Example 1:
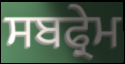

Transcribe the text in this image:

ਸਬਫ੍ਰੇਮ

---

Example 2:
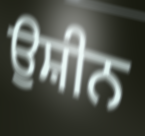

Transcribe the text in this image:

ਉਸ਼ੀਨ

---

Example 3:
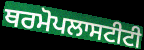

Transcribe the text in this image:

ਥਰਮੋਪਲਾਸਟੀਟੀ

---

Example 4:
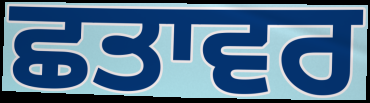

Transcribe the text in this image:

ਛਤਾਵਰ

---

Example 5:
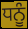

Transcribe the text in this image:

ਧਨੂੰ